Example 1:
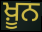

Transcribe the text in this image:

ਖ਼ੂਨ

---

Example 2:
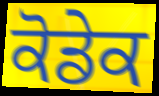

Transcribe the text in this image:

ਕੋਡੇਕ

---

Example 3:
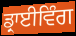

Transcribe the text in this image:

ਡ੍ਰਾਈਵਿੰਗ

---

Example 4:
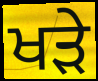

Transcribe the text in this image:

ਖੜੇ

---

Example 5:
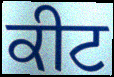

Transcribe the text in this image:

ਕੀਟ